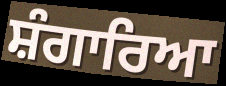
ਸ਼ੰਗਾਰਿਆ